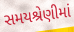
સમયશ્રેણીમાં